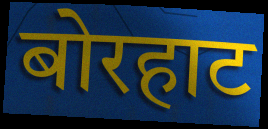
बोरहाट